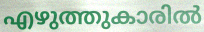
എഴുത്തുകാരിൽ